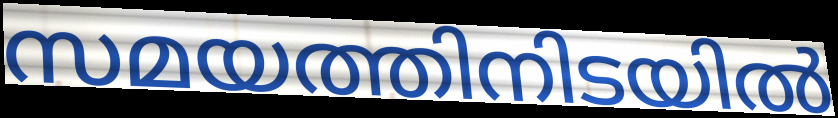
സമയത്തിനിടയിൽ